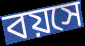
বয়সে